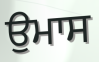
ਉਮਾਸ